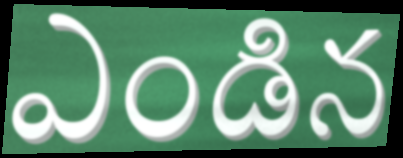
ఎండిన